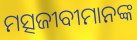
ମତ୍ସଜୀବୀମାନଙ୍କ